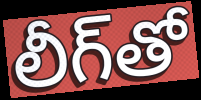
లీగ్‌తో